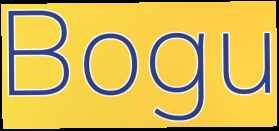
Bogu